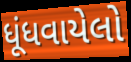
ધૂંધવાયેલો